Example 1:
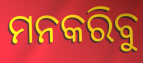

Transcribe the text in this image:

ମନକରିବୁ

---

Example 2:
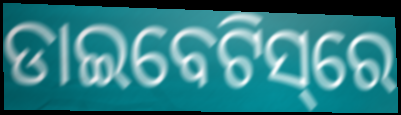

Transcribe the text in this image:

ଡାଇବେଟିସ୍‌ରେ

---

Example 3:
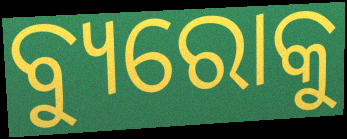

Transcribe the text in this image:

ବ୍ୟୁରୋକୁ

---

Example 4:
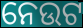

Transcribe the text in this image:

ନେଉଟ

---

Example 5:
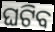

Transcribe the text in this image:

ଘଟିବ